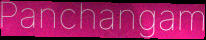
Panchangam